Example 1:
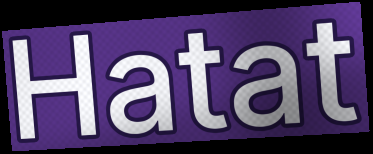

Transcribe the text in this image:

Hatat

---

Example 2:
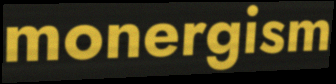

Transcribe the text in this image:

monergism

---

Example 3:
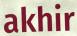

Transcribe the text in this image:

akhir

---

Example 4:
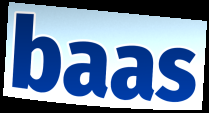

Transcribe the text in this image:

baas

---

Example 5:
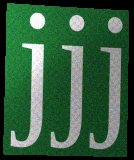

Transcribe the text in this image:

jjj